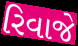
રિવાજે